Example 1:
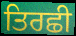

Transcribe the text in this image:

ਤਿਰਛੀ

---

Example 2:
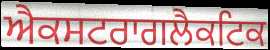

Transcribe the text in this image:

ਐਕਸਟਰਾਗਲੈਕਟਿਕ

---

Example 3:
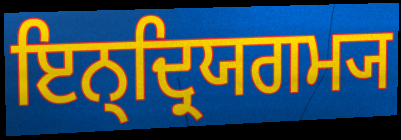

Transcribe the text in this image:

ਇਨ੍ਦ੍ਰਿਯਗਮ੍ਯ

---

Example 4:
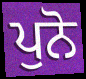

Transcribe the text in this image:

ਪੁਨੋ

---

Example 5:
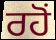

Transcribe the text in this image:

ਰਹੋਂ